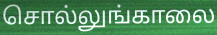
சொல்லுங்காலை